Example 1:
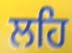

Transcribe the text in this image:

ਲਹਿ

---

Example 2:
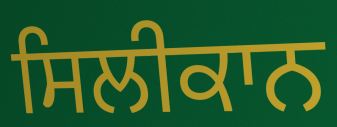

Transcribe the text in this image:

ਸਿਲੀਕਾਨ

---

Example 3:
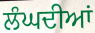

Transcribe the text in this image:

ਲੰਘਦੀਆਂ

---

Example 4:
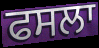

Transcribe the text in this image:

ਫਸਲਾ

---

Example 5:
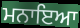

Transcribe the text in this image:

ਮਨਾਇਆ